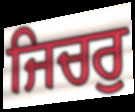
ਜਿਚਰੁ